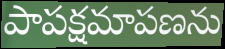
పాపక్షమాపణను